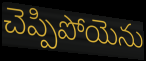
చెప్పిపోయెను